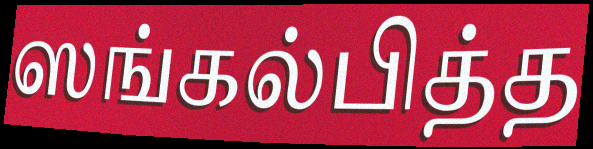
ஸங்கல்பித்த